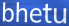
bhetu